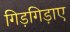
गिड़गिड़ाए